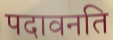
पदावनति